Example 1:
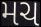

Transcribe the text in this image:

મચ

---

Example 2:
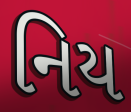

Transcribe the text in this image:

નિય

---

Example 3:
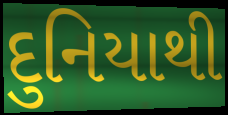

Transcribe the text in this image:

દુનિયાથી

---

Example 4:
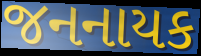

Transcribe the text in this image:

જનનાયક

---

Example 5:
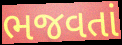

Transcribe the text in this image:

ભજવતાં